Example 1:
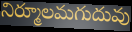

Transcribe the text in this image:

నిర్మూలమగుదువు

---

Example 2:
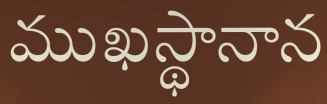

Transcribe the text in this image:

ముఖస్థానాన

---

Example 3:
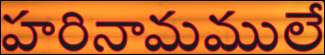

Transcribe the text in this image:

హరినామములే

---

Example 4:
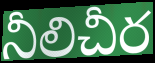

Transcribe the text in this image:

నీలిచీర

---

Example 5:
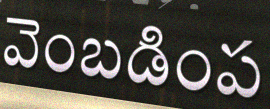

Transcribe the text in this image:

వెంబడింప